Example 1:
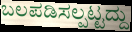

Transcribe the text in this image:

ಬಲಪಡಿಸಲ್ಪಟ್ಟದ್ದು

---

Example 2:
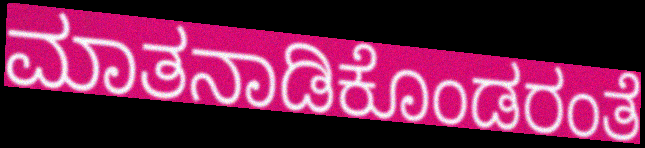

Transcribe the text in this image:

ಮಾತನಾಡಿಕೊಂಡರಂತೆ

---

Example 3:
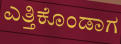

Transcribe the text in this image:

ಎತ್ತಿಕೊಂಡಾಗ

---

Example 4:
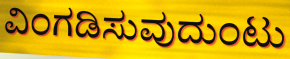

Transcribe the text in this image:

ವಿಂಗಡಿಸುವುದುಂಟು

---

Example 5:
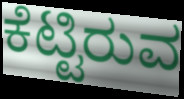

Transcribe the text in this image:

ಕೆಟ್ಟಿರುವ